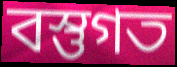
বস্তুগত